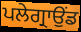
ਪਲੇਗ੍ਰਾਉਂਡ